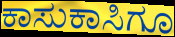
ಕಾಸುಕಾಸಿಗೂ